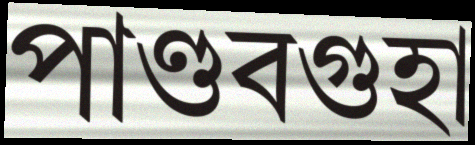
পাণ্ডবগুহা